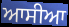
ਆਸੀਆ